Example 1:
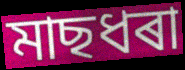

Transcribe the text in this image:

মাছধৰা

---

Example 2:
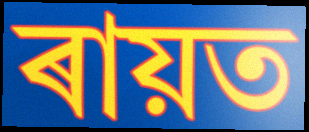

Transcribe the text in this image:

ৰায়ত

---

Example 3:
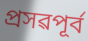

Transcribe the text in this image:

প্ৰসৱপূৰ্ব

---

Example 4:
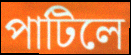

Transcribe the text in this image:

পাটিলে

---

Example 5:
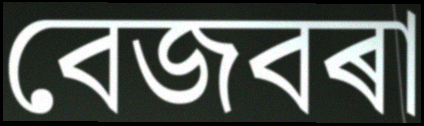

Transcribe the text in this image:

বেজবৰা